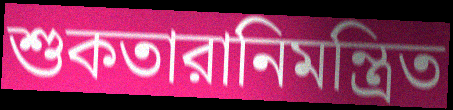
শুকতারানিমন্ত্রিত